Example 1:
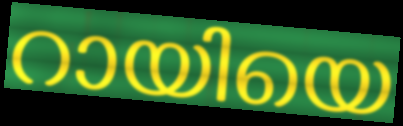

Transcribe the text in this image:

റായിയെ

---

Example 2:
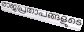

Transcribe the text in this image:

രാജപ്രതാപങ്ങളുടെ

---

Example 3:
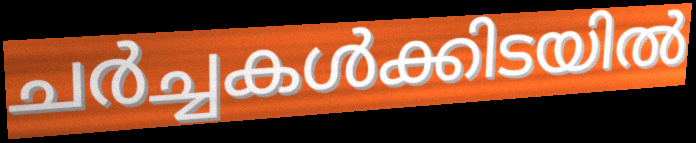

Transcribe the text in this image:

ചർച്ചകൾക്കിടയിൽ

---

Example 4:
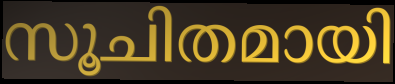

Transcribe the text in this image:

സൂചിതമായി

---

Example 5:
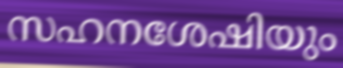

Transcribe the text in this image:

സഹനശേഷിയും